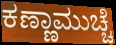
ಕಣ್ಣಾಮುಚ್ಚೆ